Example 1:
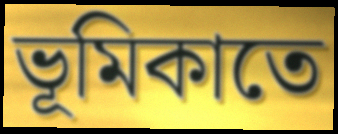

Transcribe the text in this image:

ভূমিকাতে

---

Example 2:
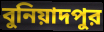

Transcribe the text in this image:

বুনিয়াদপুর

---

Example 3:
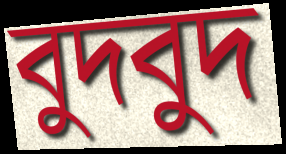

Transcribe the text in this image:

বুদবুদ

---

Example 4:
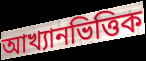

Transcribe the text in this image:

আখ্যানভিত্তিক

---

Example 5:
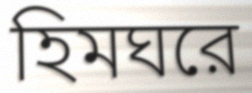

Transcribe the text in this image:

হিমঘরে